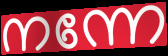
നന്നേ